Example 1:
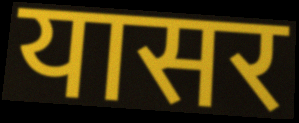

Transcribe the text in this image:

यासर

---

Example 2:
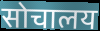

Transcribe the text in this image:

सोचालय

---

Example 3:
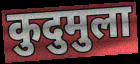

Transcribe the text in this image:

कुदुमुला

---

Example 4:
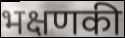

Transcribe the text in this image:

भक्षणकी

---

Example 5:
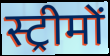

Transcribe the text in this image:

स्ट्रीमों